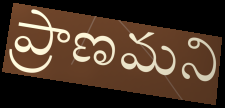
ప్రాణమని